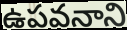
ఉపవనాని